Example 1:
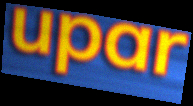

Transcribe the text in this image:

upar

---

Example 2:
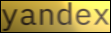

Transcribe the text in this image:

yandex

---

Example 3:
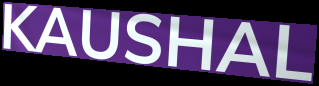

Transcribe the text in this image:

KAUSHAL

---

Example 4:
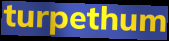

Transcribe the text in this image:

turpethum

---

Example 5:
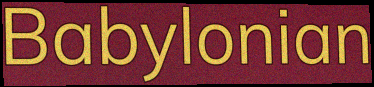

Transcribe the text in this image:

Babylonian